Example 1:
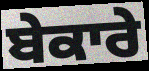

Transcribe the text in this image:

ਬੇਕਾਰੇ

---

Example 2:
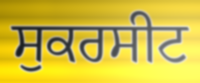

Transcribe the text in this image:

ਸੁਕਰਸੀਟ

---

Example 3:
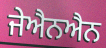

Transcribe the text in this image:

ਜੇਐਨਐਨ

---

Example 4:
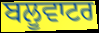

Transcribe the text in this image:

ਬਲੂਵਾਟਰ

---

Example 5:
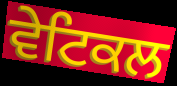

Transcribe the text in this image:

ਵੇਟਿਕਲ